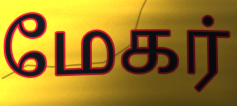
மேகர்